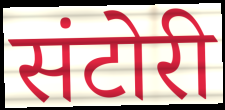
संटोरी